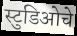
स्टुडिओचे